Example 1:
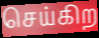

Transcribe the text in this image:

செய்கிற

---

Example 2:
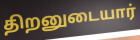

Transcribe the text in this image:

திறனுடையார்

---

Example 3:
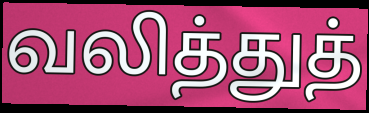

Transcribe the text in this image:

வலித்துத்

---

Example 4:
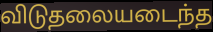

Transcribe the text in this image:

விடுதலையடைந்த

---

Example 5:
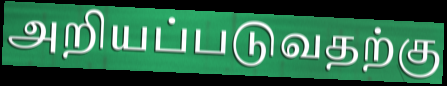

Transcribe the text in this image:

அறியப்படுவதற்கு